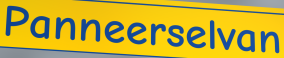
Panneerselvan